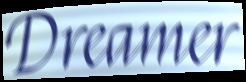
Dreamer